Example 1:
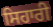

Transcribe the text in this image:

ਸਿਹਾਰੀ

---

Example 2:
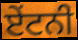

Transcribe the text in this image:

ਏਂਟਨੀ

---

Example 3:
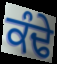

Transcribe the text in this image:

ਕੰਢੇ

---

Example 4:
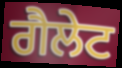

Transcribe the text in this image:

ਗੈਲੇਟ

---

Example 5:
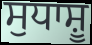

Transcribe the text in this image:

ਸੁਧਾਸ਼ੂ